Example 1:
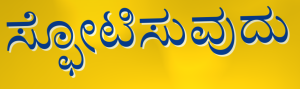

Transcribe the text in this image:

ಸ್ಫೋಟಿಸುವುದು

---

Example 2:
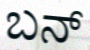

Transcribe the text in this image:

ಬನ್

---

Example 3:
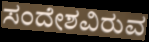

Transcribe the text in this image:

ಸಂದೇಶವಿರುವ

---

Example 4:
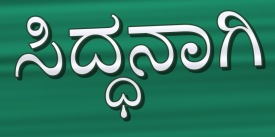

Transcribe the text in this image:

ಸಿದ್ಧನಾಗಿ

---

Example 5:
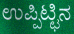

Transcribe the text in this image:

ಉಪ್ಪಿಟ್ಟಿನ